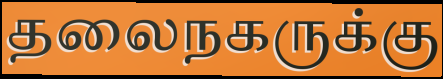
தலைநகருக்கு